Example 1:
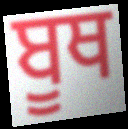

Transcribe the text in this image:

ਬੂਥ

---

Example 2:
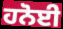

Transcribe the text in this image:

ਹਨੋਈ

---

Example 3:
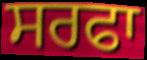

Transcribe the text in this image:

ਸਰਫਾ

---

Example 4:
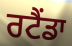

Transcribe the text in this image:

ਰਟੈਂਡਾ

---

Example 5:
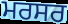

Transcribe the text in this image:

ਮਰਸਰ